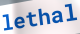
lethal